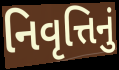
નિવૃત્તિનું